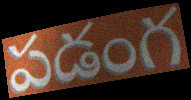
పడంగ